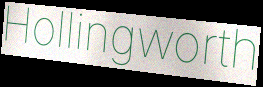
Hollingworth